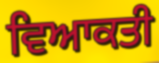
ਵਿਆਕਤੀ